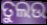
ତୁଲଉ